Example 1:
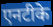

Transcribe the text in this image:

एनटीके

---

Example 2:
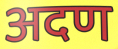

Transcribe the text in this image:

अदण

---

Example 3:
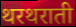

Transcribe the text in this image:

थरथराती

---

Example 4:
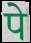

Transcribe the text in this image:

पे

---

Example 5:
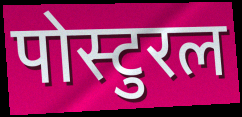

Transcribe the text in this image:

पोस्टुरल